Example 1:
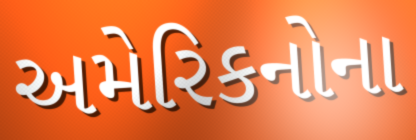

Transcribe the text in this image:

અમેરિકનોના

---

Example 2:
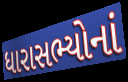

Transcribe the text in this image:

ધારાસભ્યોનાં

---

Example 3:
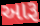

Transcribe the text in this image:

આરૂ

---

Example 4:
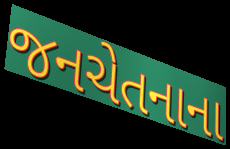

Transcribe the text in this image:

જનચેતનાના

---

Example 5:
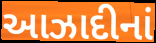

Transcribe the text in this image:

આઝાદીનાં